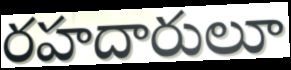
రహదారులూ